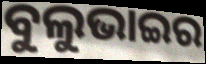
ବୁଲୁଭାଇର